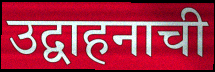
उद्वाहनाची